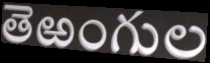
తెఱంగుల